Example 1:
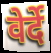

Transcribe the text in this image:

वेर्दे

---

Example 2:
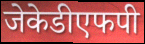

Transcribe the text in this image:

जेकेडीएफपी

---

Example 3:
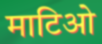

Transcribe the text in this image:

माटिओ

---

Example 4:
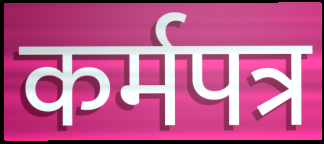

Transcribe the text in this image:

कर्मपत्र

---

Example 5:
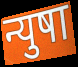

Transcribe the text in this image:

न्युषा